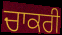
ਚਾਕਰੀ